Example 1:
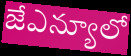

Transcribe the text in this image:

జేఎన్యూలో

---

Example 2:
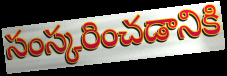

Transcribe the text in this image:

సంస్కరించడానికి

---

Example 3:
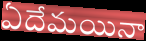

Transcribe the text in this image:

ఏదేమయినా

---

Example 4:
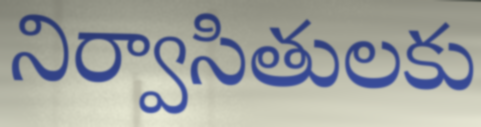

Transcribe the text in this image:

నిర్వాసితులకు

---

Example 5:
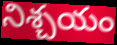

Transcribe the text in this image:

నిశ్చయం